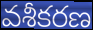
వశీకరణ